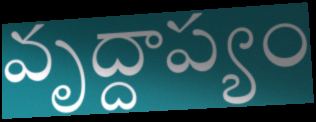
వృద్దాప్యం